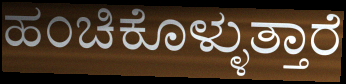
ಹಂಚಿಕೊಳ್ಳುತ್ತಾರೆ